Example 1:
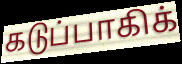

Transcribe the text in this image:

கடுப்பாகிக்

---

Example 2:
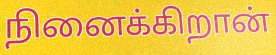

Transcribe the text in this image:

நினைக்கிறான்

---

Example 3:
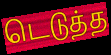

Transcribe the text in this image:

டெடுத்த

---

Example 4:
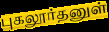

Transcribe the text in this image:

புகலூர்தனுள்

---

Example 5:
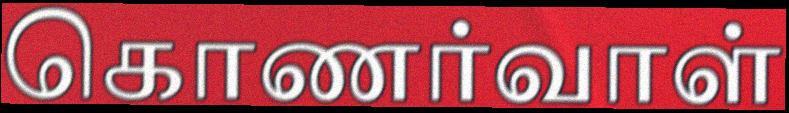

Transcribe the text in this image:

கொணர்வாள்